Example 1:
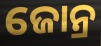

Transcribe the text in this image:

ଜୋନ୍ର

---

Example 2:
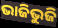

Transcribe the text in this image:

ଭାଜିଭୁଜି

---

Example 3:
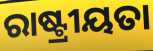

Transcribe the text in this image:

ରାଷ୍ଟ୍ରୀୟତା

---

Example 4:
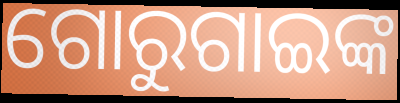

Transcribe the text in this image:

ଗୋରୁଗାଇଙ୍କ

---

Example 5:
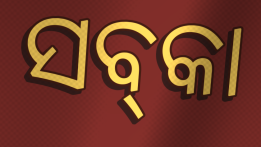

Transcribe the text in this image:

ସବ୍‌କା